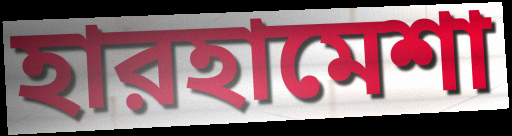
হারহামেশা